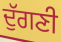
ਦੁੱਗਣੀ